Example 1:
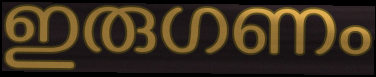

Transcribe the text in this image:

ഇരുഗണം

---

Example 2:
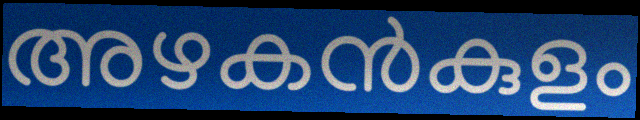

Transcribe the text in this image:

അഴകൻകുളം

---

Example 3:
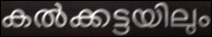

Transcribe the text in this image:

കൽക്കട്ടയിലും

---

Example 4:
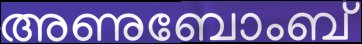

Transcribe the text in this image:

അണുബോംബ്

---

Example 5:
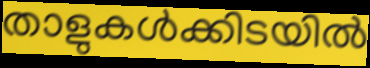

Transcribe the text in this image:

താളുകൾക്കിടയിൽ